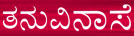
ತನುವಿನಾಸೆ